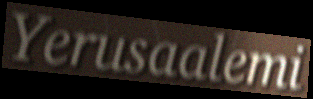
Yerusaalemi